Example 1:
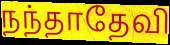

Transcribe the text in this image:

நந்தாதேவி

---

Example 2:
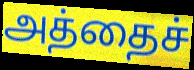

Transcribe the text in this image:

அத்தைச்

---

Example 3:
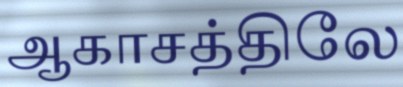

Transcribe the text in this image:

ஆகாசத்திலே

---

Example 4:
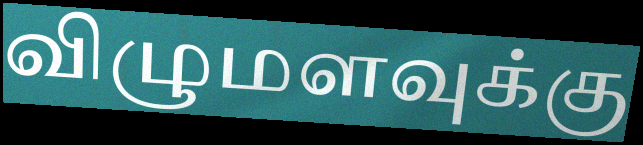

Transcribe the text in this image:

விழுமளவுக்கு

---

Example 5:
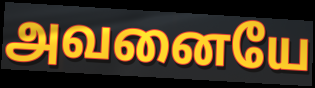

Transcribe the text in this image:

அவனையே